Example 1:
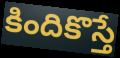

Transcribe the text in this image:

కిందికొస్తే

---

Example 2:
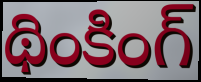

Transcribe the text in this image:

థింకింగ్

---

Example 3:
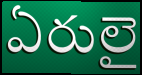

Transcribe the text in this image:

ఏరులై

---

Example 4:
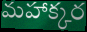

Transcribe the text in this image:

మహాక్కర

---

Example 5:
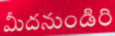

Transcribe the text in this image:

మీదనుండిరి